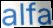
alfa